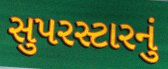
સુપરસ્ટારનું